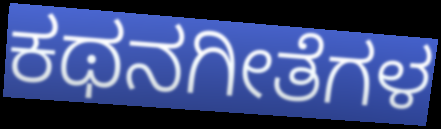
ಕಥನಗೀತೆಗಳ